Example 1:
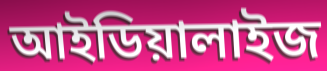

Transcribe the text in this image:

আইডিয়ালাইজ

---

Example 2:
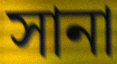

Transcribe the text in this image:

সানা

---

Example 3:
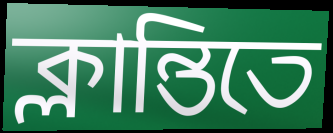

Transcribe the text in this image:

ক্লান্তিতে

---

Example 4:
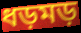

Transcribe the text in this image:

ধড়মড়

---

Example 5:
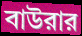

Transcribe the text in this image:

বাউরার